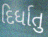
દિર્ધાતુ